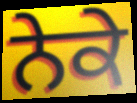
ਨੇਕੇ